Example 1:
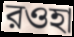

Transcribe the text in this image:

রওহা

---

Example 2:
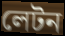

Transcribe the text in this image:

লেটন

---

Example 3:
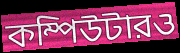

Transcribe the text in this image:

কম্পিউটারও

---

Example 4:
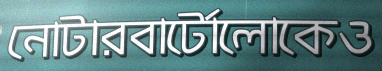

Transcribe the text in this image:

নোটারবার্টোলোকেও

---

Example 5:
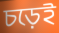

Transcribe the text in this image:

চড়েই